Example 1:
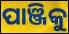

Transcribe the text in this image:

ପାଞ୍ଜିକୁ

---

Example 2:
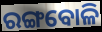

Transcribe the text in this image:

ରଙ୍ଗବୋଳି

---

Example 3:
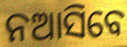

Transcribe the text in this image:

ନଆସିବେ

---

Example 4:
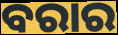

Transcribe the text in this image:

ବରାର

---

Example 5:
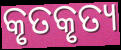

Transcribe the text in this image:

କୃତକୃତ୍ୟ